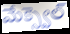
మేక్స్వెల్